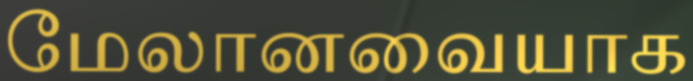
மேலானவையாக